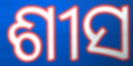
ଶୀସ